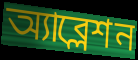
অ্যাব্লেশন